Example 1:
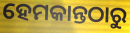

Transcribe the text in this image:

ହେମକାନ୍ତଠାରୁ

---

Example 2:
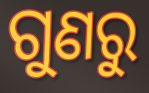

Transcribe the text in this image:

ଗୁଣରୁ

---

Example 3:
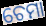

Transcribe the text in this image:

ଚେମା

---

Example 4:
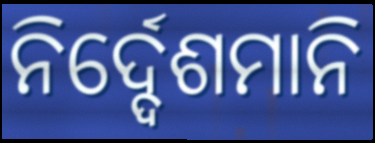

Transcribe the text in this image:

ନିର୍ଦ୍ଦେଶମାନି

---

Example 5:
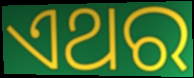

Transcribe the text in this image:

ଏଥର